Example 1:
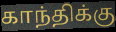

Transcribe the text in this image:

காந்திக்கு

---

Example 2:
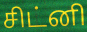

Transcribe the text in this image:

சிட்னி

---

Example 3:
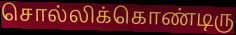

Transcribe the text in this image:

சொல்லிக்கொண்டிரு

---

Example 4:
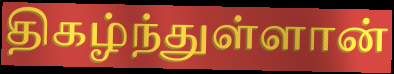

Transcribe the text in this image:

திகழ்ந்துள்ளான்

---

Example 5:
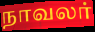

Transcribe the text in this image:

நாவலர்